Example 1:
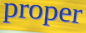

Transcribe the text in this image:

proper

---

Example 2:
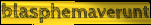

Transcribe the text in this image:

blasphemaverunt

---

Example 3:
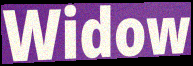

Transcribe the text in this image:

Widow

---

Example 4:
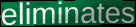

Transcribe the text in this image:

eliminates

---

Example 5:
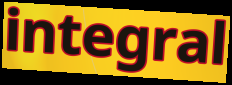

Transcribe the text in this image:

integral